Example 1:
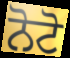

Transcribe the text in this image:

ਨੋਟੋ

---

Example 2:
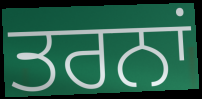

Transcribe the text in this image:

ਤਰਨਾਂ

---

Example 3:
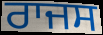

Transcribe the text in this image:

ਰਾਜਸ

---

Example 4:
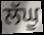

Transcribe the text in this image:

ਲੱਘੂ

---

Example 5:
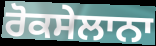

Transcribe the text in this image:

ਰੋਕਸੇਲਾਨਾ